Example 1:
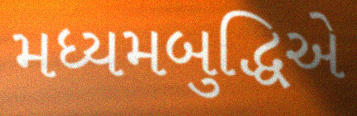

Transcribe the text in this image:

મધ્યમબુદ્ધિએ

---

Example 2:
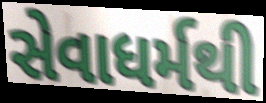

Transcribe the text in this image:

સેવાધર્મથી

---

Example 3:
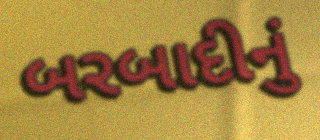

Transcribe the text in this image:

બરબાદીનું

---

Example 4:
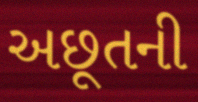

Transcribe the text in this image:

અછૂતની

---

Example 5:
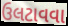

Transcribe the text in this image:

ઉલટાવવા